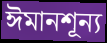
ঈমানশূন্য